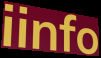
iinfo